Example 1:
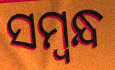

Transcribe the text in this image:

ସମ୍ବନ୍ଧ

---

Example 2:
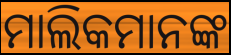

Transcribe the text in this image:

ମାଲିକମାନଙ୍କ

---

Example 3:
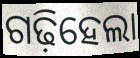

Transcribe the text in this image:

ଗଢ଼ିହେଲା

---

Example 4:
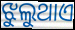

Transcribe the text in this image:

ଝୁଲୁଥାଏ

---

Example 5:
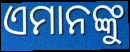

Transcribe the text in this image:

ଏମାନଙ୍କୁ